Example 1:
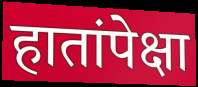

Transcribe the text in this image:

हातांपेक्षा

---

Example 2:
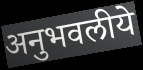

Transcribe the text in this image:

अनुभवलीये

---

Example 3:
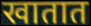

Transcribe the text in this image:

खातात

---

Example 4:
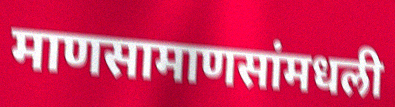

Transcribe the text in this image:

माणसामाणसांमधली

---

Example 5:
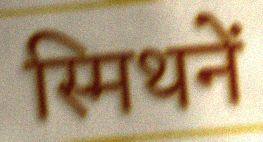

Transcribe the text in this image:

स्मिथनें